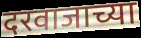
दरवाजाच्या